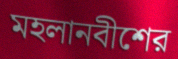
মহলানবীশের